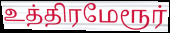
உத்திரமேரூர்